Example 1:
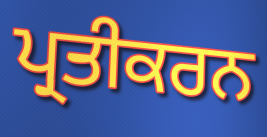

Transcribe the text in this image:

ਪ੍ਰਤੀਕਰਨ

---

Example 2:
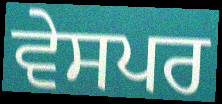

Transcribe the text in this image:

ਵੇਸਪਰ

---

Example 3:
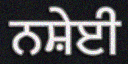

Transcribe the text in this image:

ਨਸ਼ੇਈ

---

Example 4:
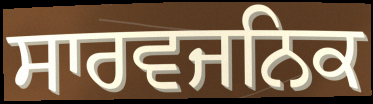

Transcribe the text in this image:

ਸਾਰਵਜਨਿਕ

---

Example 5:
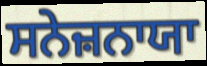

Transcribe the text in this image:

ਸਨੇਜ਼ਨਾਯਾ